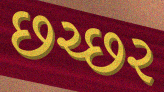
છચ્છર